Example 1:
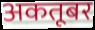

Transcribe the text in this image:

अकतूबर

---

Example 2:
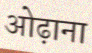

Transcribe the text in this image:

ओढ़ाना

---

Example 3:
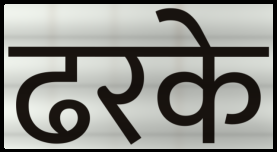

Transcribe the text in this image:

ढरके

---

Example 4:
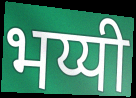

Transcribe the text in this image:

भय्यी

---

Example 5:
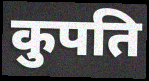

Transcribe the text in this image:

कुपति